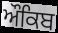
ਔਕਿਬ